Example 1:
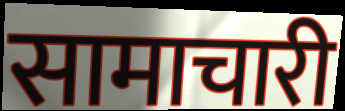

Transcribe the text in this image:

सामाचारी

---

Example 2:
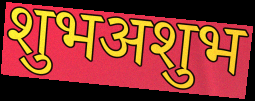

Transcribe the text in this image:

शुभअशुभ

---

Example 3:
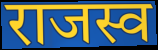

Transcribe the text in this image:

राजस्व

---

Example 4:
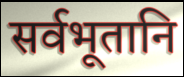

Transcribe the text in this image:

सर्वभूतानि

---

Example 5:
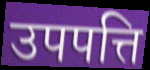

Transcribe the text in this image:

उपपत्ति